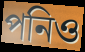
পনিও